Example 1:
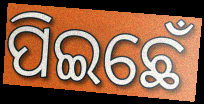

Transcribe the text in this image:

ପିଇଛେଁ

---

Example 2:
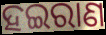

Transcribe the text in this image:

ହଇରାଣ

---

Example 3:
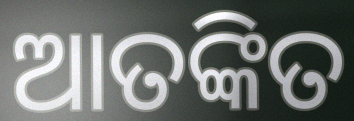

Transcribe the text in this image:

ଆତଙ୍କିତ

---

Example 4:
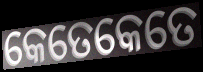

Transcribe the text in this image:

କେତେକେତେ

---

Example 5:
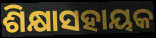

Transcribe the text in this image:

ଶିକ୍ଷାସହାୟକ